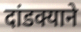
दांडक्याने